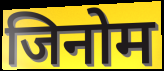
जिनोम